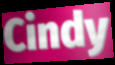
Cindy